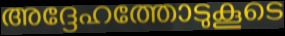
അദ്ദേഹത്തോടുകൂടെ